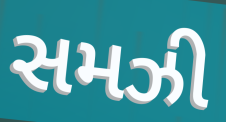
સમઝી